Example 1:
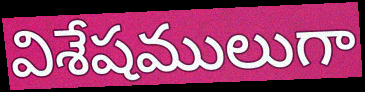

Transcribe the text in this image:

విశేషములుగా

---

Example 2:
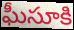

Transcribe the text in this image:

ఘీసూకి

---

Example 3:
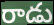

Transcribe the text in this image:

రాడు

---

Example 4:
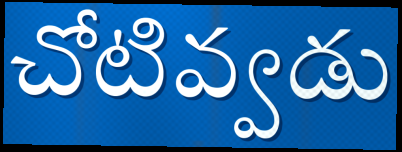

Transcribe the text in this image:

చోటివ్వడు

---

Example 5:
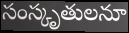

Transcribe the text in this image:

సంస్కృతులనూ